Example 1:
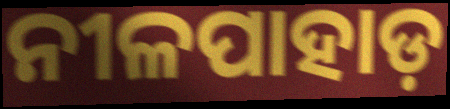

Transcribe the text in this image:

ନୀଳପାହାଡ଼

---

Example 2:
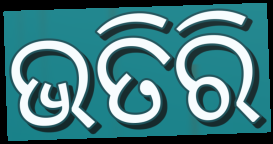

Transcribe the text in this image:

ଭତିରି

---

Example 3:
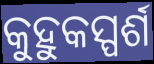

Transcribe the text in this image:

କୁହୁକସ୍ପର୍ଶ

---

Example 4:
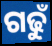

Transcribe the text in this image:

ଗଢୁଁ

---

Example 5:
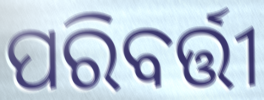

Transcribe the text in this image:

ପରିବର୍ତ୍ତୀ